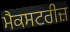
ਮੈਕਸਟਰੀਜ਼